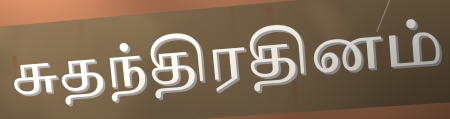
சுதந்திரதினம்